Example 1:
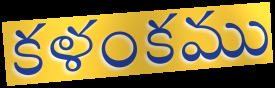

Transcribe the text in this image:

కళంకము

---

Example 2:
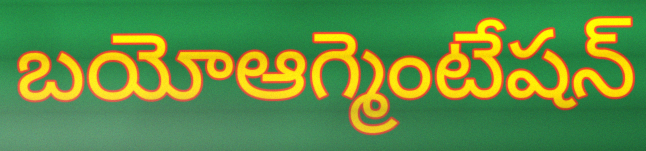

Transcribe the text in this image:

బయోఆగ్మెంటేషన్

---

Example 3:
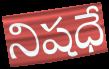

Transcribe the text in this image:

నిషధే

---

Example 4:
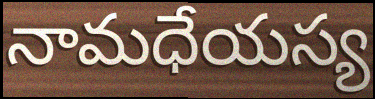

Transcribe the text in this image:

నామధేయస్య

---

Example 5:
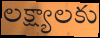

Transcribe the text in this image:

లక్ష్యాలకు